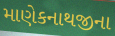
માણેકનાથજીના